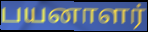
பயனாளர்